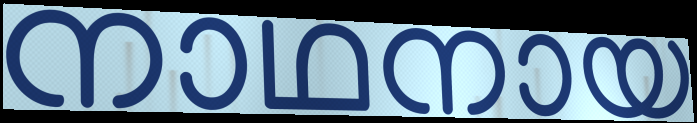
നാഥനായ